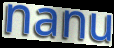
nanu